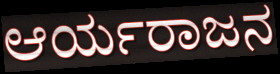
ಆರ್ಯರಾಜನ